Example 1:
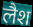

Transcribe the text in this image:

लैश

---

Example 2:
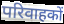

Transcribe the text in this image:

परिवाहकों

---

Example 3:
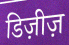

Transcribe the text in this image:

डिज़ीज़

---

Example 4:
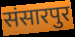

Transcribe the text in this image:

संसारपुर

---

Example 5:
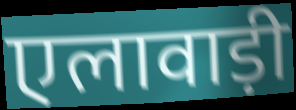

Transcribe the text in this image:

एलावाड़ी